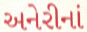
અનેરીનાં